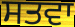
ਸਤਵਾ